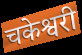
चकेश्वरी